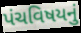
પંચવિષયનું